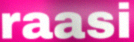
raasi